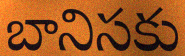
బానిసకు